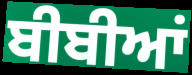
ਬੀਬੀਆਂ